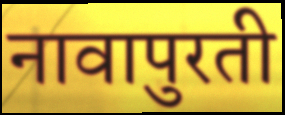
नावापुरती